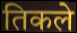
तिकले